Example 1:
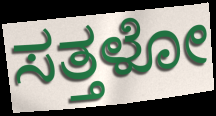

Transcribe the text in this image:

ಸತ್ತಳೋ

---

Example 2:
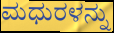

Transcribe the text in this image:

ಮಧುರಳನ್ನು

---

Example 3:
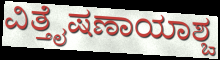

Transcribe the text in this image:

ವಿತ್ತೈಷಣಾಯಾಶ್ಚ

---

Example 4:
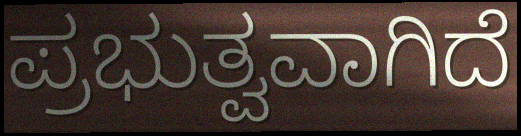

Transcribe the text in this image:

ಪ್ರಭುತ್ವವಾಗಿದೆ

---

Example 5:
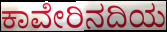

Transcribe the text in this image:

ಕಾವೇರಿನದಿಯ